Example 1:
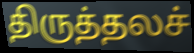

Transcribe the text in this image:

திருத்தலச்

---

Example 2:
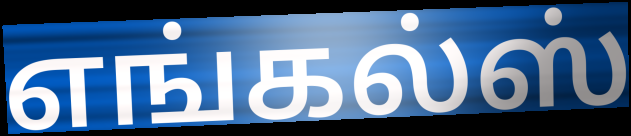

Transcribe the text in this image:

எங்கல்ஸ்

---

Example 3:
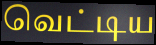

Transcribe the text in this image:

வெட்டிய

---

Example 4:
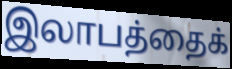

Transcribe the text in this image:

இலாபத்தைக்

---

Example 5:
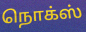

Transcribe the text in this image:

நொக்ஸ்